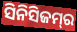
ସିନିସିଜମ୍‌ର